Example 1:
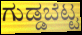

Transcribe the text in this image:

ಗುಡ್ಡಬೆಟ್ಟ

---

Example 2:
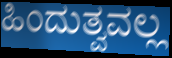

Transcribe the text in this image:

ಹಿಂದುತ್ವವಲ್ಲ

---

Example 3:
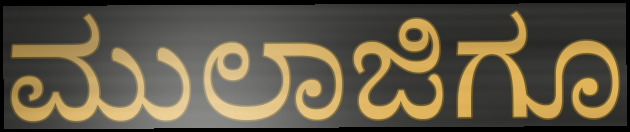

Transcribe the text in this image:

ಮುಲಾಜಿಗೂ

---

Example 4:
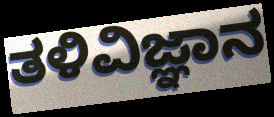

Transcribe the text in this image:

ತಳಿವಿಜ್ಞಾನ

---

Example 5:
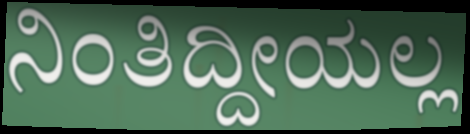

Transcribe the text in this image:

ನಿಂತಿದ್ದೀಯಲ್ಲ